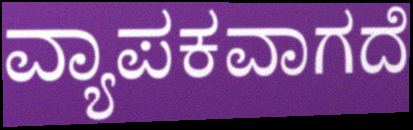
ವ್ಯಾಪಕವಾಗದೆ